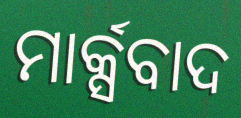
ମାର୍କ୍ସବାଦ